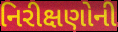
નિરીક્ષણોની